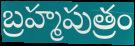
బ్రహ్మపుత్రం